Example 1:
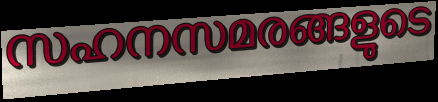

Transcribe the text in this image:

സഹനസമരങ്ങളുടെ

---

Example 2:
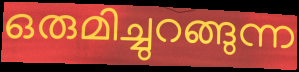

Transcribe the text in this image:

ഒരുമിച്ചുറങ്ങുന്ന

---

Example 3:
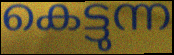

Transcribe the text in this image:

കെട്ടുന്ന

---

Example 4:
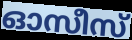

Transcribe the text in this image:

ഓസീസ്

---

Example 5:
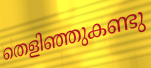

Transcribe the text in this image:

തെളിഞ്ഞുകണ്ടു